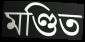
মণ্ডিত